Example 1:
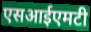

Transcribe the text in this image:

एसआईएमटी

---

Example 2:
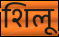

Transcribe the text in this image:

शिलू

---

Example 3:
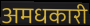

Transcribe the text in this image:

अमधकारी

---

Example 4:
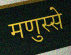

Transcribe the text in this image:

मणुस्से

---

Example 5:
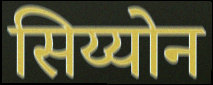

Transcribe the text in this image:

सिय्योन